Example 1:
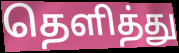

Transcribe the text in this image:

தெளித்து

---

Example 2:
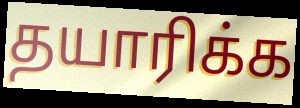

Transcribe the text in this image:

தயாரிக்க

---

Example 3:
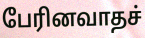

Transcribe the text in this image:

பேரினவாதச்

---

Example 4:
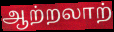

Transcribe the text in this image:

ஆற்றலாற்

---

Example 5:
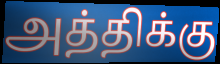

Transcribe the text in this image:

அத்திக்கு